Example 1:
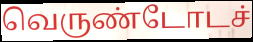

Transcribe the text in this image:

வெருண்டோடச்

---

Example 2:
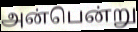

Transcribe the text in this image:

அன்பென்று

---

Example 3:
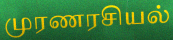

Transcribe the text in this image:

முரணரசியல்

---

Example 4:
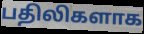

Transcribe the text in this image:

பதிலிகளாக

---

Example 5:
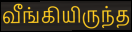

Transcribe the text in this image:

வீங்கியிருந்த